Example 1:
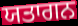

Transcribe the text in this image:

ਯਤਾਗਨ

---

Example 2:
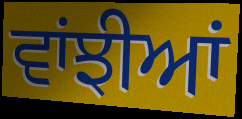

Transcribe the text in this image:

ਵਾਂਝੀਆਂ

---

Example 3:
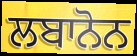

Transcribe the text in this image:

ਲਬਾਨੋਨ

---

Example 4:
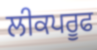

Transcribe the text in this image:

ਲੀਕਪਰੂਫ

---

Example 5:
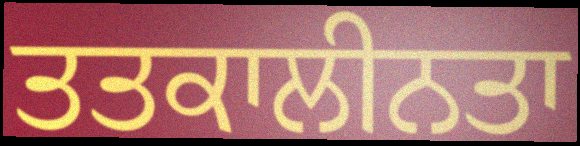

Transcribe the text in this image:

ਤਤਕਾਲੀਨਤਾ